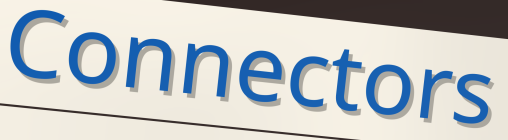
Connectors